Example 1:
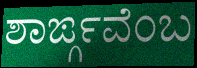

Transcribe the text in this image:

ಶಾರ್ಙ್ಗವೆಂಬ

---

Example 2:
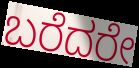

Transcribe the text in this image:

ಬರೆದರೇ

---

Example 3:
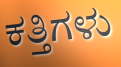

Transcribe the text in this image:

ಕತ್ತಿಗಳು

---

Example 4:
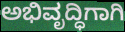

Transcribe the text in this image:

ಅಭಿವೃದ್ಧಿಗಾಗಿ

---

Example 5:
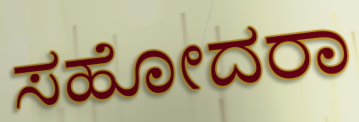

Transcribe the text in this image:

ಸಹೋದರಾ